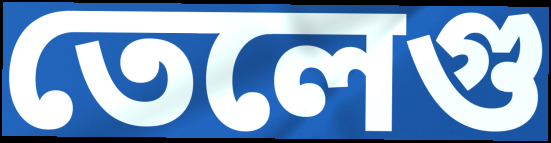
তেলেগু